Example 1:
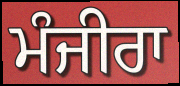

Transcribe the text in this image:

ਮੰਜੀਰਾ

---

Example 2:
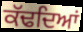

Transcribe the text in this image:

ਕੱਢਦਿਆਂ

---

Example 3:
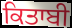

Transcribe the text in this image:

ਕਿਤਾਬੀ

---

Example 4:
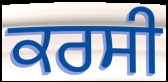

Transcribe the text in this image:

ਕਰਸੀ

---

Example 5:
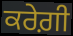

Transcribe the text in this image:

ਕਰੇਗ਼ੀ